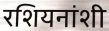
रशियनांशी